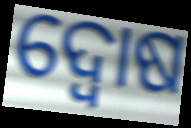
ଦ୍ୱୋଷ